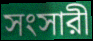
সংসারী